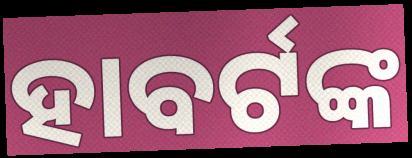
ହାବର୍ଟଙ୍କ